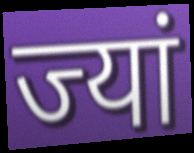
ज्यां